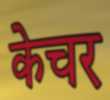
केचर